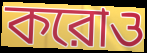
করোও